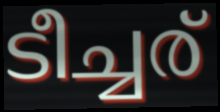
ടീച്ചര്